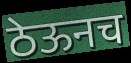
ठेऊनच